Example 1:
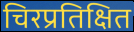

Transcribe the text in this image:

चिरप्रतिक्षित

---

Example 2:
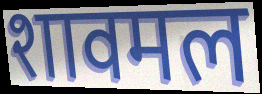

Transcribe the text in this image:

शावमल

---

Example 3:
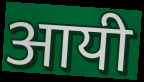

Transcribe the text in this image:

आयी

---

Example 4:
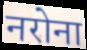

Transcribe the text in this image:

नरोना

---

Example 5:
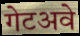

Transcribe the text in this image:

गेटअवे